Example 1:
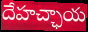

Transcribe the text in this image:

దేహచ్ఛాయ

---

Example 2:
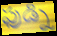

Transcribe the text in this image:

ఫుడ్ని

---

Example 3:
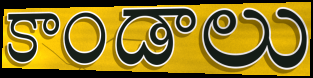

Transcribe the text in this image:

కాండాలు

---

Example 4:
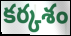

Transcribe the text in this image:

కర్కశం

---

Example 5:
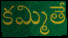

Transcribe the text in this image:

కమ్మితే